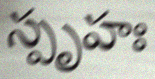
స్పృహః